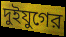
দুইযুগের